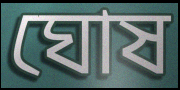
ঘোষ